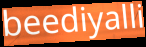
beediyalli